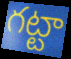
గట్టా